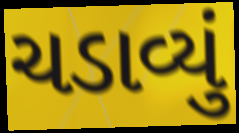
ચડાવ્યું